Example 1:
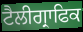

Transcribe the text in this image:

ਟੈਲੀਗ੍ਰਾਫਿਕ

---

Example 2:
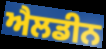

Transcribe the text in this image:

ਐਲਡੀਨ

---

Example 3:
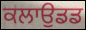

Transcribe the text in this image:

ਕਲਾਉਡਡ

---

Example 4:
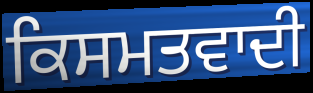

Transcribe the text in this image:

ਕਿਸਮਤਵਾਦੀ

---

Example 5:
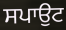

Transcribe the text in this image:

ਸਪਾਉਟ